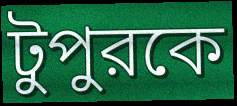
টুপুরকে